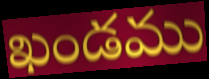
ఖండము